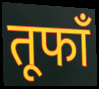
तूफाँ